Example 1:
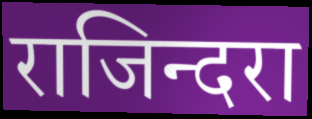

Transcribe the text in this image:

राजिन्दरा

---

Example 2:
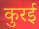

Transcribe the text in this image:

कुरई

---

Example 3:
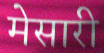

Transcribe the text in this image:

मेसारी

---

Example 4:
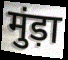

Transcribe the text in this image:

मुंड़ा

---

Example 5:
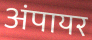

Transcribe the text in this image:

अंपायर